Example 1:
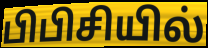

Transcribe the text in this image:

பிபிசியில்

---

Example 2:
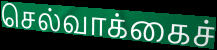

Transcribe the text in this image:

செல்வாக்கைச்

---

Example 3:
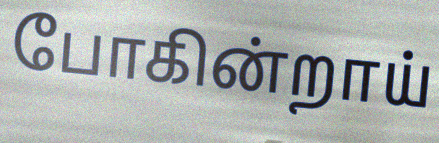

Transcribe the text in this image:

போகின்றாய்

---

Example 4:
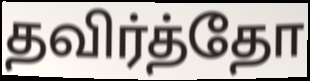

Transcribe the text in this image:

தவிர்த்தோ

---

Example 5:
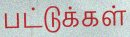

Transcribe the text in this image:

பட்டுக்கள்